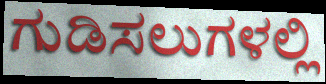
ಗುಡಿಸಲುಗಳಲ್ಲಿ